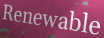
Renewable